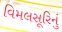
વિમલસૂરિનું